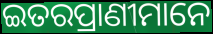
ଇତରପ୍ରାଣୀମାନେ